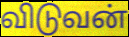
விடுவன்